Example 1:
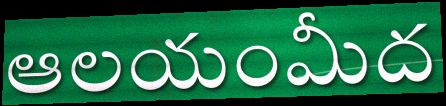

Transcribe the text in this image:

ఆలయంమీద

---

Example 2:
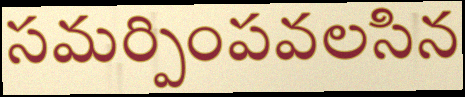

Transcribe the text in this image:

సమర్పింపవలసిన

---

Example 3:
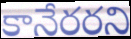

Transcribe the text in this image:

కానేరరని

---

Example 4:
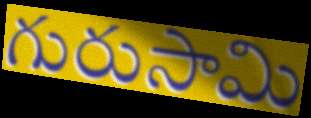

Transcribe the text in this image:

గురుసామి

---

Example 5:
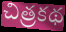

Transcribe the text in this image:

చిత్రకథ